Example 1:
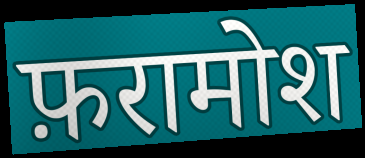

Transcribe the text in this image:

फ़रामोश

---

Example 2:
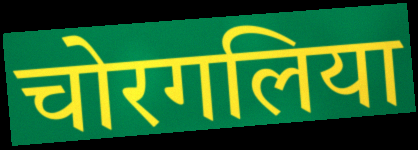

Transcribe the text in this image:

चोरगलिया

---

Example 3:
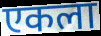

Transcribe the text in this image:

एकला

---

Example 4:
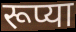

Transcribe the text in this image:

रूप्या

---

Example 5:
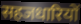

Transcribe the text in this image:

सहजधारियों